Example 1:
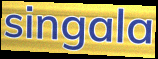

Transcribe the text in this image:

singala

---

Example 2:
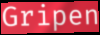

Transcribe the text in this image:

Gripen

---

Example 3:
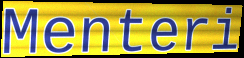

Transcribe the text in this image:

Menteri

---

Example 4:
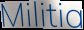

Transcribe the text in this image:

Militia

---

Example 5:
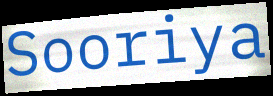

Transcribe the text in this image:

Sooriya